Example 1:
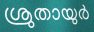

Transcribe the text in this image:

ശ്രുതായുർ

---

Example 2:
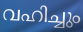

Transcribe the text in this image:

വഹിച്ചും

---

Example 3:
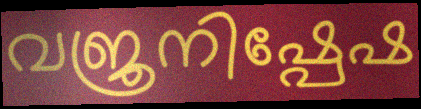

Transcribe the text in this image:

വജ്രനിഷ്പേഷ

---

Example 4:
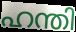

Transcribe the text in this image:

ഹന്തി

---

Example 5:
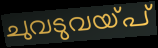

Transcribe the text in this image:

ചുവടുവയ്പ്